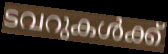
ടവറുകൾക്ക്